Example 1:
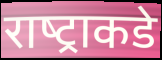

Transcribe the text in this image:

राष्ट्राकडे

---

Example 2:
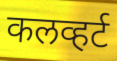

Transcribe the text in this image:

कलव्हर्ट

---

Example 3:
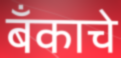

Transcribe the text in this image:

बँकाचे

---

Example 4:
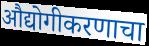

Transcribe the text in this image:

औद्योगीकरणाचा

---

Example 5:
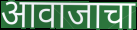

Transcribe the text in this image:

आवाजाचा